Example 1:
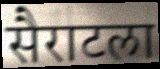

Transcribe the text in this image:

सैराटला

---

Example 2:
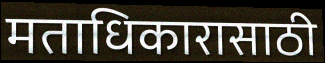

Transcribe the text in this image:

मताधिकारासाठी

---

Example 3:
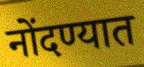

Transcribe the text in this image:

नोंदण्यात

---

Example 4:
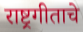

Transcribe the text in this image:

राष्ट्रगीताचे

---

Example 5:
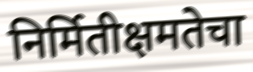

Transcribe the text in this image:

निर्मितीक्षमतेचा